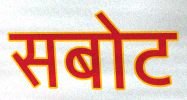
सबोट